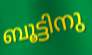
ബൂട്ടിനു